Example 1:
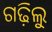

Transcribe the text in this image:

ଗଢ଼ିଲୁ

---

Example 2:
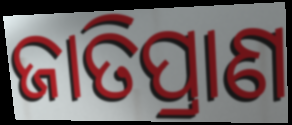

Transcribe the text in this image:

ଜାତିପ୍ରାଣ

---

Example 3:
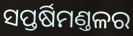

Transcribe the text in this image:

ସପ୍ତର୍ଷିମଣ୍ତଳର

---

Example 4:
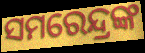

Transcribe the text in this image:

ସମରେନ୍ଦ୍ରଙ୍କ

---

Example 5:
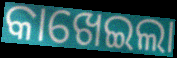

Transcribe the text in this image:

କାଖେଇଲା